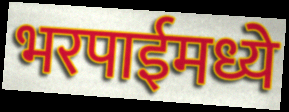
भरपाईमध्ये